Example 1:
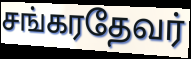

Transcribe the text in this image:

சங்கரதேவர்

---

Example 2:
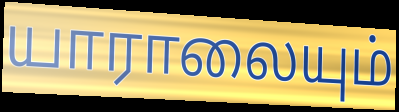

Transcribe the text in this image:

யாராலையும்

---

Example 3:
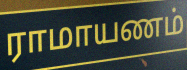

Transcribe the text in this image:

ராமாயணம்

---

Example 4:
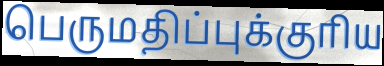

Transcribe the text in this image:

பெருமதிப்புக்குரிய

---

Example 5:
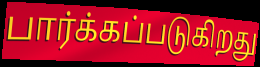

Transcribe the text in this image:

பார்க்கப்படுகிறது